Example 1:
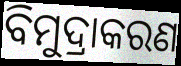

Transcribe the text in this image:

ବିମୁଦ୍ରାକରଣ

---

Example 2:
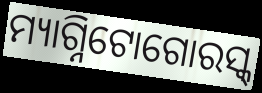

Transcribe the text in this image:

ମ୍ୟାଗ୍ନିଟୋଗୋରସ୍କ୍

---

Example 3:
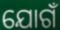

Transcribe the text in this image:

ଯୋଗଁ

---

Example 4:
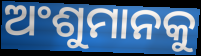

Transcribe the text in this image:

ଅଂଶୁମାନକୁ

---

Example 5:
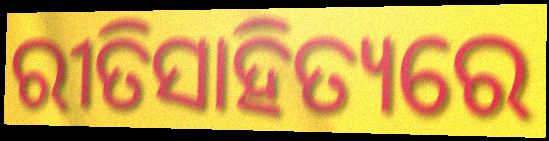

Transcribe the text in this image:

ରୀତିସାହିତ୍ୟରେ